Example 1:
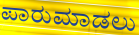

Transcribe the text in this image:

ಪಾರುಮಾಡಲು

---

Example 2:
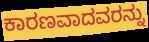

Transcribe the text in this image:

ಕಾರಣವಾದವರನ್ನು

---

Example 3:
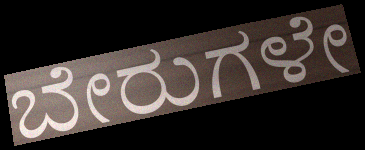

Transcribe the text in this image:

ಬೇರುಗಳೇ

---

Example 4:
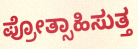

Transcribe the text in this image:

ಪ್ರೋತ್ಸಾಹಿಸುತ್ತ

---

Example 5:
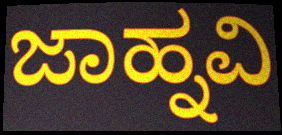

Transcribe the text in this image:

ಜಾಹ್ನವಿ